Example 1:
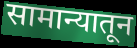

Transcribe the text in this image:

सामान्यातून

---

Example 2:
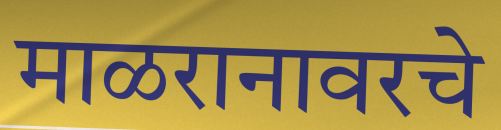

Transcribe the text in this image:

माळरानावरचे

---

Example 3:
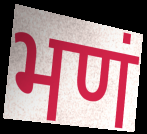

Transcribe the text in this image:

भणं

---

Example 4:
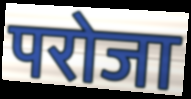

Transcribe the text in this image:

परोजा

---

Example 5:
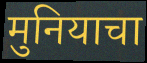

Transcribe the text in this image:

मुनियाचा